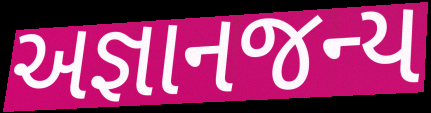
અજ્ઞાનજન્ય